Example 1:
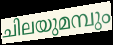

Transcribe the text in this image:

ചിലയുമമ്പും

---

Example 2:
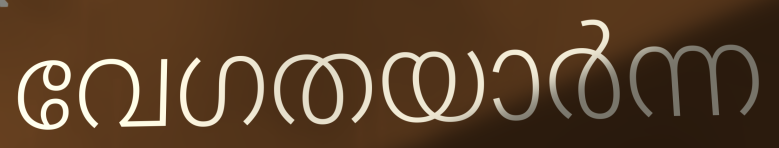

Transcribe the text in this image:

വേഗതയാർന്ന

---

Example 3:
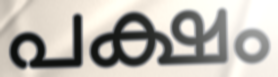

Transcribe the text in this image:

പക്ഷം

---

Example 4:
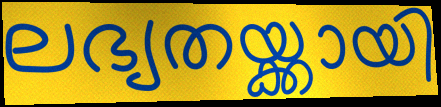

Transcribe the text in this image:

ലഭ്യതയ്ക്കായി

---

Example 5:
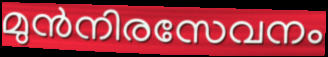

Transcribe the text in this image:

മുൻനിരസേവനം